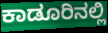
ಕಾಡೂರಿನಲ್ಲಿ